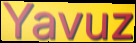
Yavuz